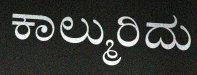
ಕಾಲ್ಮುರಿದು